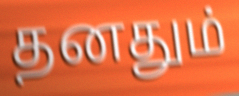
தனதும்